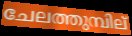
ചേലത്തുമ്പില്